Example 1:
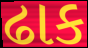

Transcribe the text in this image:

ઢાક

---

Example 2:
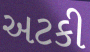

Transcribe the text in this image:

અટકી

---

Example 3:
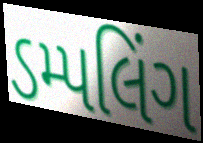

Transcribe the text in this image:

ડમ્પલિંગ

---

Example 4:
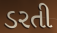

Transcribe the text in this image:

ડરતી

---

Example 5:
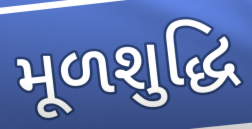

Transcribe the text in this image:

મૂળશુદ્ધિ